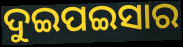
ଦୁଇପଇସାର